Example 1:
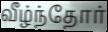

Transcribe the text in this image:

வீழ்ந்தோர்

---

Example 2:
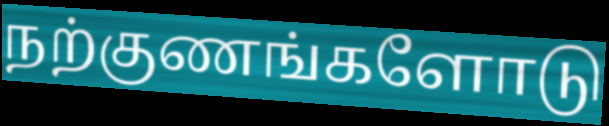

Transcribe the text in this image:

நற்குணங்களோடு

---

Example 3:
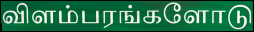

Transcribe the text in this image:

விளம்பரங்களோடு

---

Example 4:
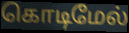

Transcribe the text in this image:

கொடிமேல்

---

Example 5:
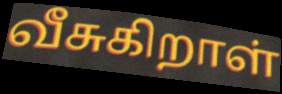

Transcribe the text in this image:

வீசுகிறாள்